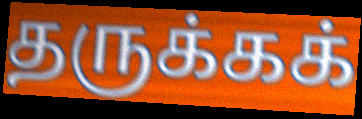
தருக்கக்